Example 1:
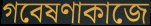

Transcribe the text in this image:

গবেষণাকাজে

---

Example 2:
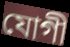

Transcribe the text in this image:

যোগী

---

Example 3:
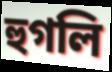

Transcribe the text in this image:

হুগলি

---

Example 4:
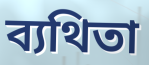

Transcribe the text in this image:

ব্যথিতা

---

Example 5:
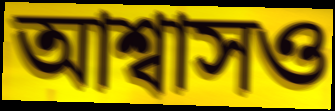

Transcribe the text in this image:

আশ্বাসও